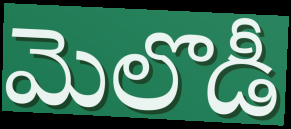
మెలొడీ